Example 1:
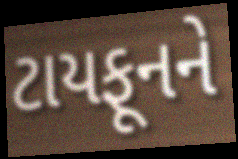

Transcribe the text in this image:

ટાયફૂનને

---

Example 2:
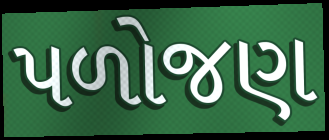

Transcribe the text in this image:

પળોજણ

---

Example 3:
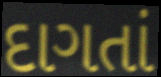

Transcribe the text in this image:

દાગતાં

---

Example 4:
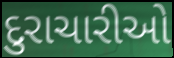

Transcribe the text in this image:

દુરાચારીઓ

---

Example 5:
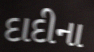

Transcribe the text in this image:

દાદીના